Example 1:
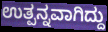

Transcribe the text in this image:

ಉತ್ಪನ್ನವಾಗಿದ್ದು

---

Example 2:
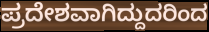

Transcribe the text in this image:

ಪ್ರದೇಶವಾಗಿದ್ದುದರಿಂದ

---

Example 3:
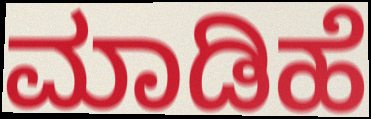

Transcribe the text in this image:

ಮಾಡಿಹೆ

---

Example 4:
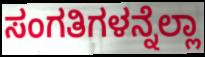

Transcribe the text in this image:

ಸಂಗತಿಗಳನ್ನೆಲ್ಲಾ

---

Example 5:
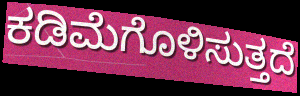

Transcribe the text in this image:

ಕಡಿಮೆಗೊಳಿಸುತ್ತದೆ